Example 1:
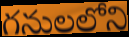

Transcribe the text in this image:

గనులలోని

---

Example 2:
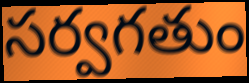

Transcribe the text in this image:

సర్వగతుం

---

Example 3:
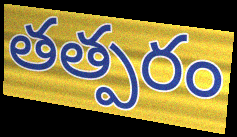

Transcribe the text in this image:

తత్పరం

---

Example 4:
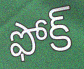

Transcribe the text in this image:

ఫోక్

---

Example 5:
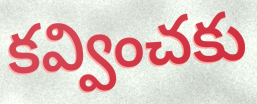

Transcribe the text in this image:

కవ్వించకు